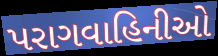
પરાગવાહિનીઓ